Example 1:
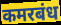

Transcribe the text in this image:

कमरबंध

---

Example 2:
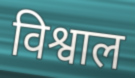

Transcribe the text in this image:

विश्वाल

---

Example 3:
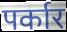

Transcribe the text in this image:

पर्कार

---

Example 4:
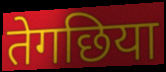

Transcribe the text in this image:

तेगछिया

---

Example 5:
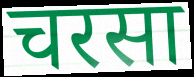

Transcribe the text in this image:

चरसा